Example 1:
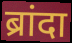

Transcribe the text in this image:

ब्रांदा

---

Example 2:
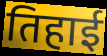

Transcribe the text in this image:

तिहाई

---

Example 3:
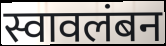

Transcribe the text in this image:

स्वावलंबन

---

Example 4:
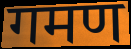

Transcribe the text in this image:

गमण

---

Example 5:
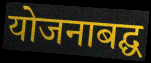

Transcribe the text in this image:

योजनाबद्घ